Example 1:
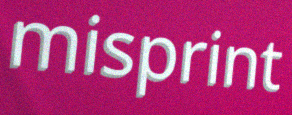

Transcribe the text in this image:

misprint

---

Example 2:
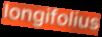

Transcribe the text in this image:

longifolius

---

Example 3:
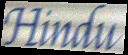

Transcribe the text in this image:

Hindu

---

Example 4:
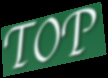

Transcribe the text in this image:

TOP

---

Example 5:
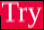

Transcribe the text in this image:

Try